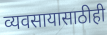
व्यवसायासाठीही